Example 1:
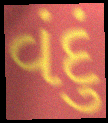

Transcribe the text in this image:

વંદું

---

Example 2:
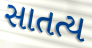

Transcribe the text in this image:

સાતત્ય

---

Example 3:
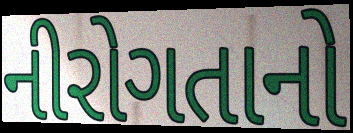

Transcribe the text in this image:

નીરોગતાનો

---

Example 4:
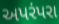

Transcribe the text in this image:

અપરંપરા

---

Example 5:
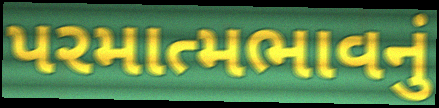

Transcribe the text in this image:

પરમાત્મભાવનું